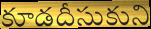
కూడదీసుకుని